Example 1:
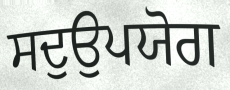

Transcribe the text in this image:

ਸਦੁਉਪਯੋਗ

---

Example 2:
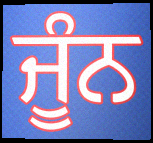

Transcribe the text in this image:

ਜੂੰਨ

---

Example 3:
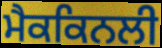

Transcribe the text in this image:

ਮੈਕਕਿਨਲੀ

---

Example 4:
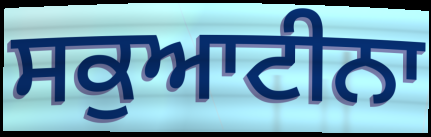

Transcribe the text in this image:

ਸਕੁਆਟੀਨਾ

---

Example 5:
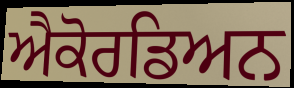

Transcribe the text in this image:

ਐਕੋਰਡਿਅਨ